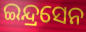
ଇନ୍ଦ୍ରସେନ